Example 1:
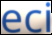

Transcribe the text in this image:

eci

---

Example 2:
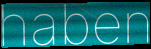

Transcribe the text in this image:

haben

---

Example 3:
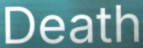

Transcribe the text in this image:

Death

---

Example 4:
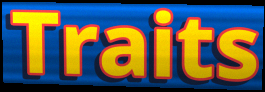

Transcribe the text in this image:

Traits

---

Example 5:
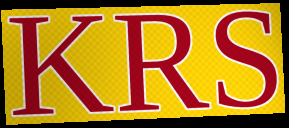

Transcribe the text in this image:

KRS